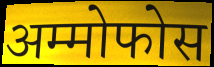
अम्मोफोस